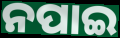
ନପାଇ